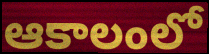
ఆకాలంలో